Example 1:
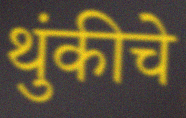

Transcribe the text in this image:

थुंकीचे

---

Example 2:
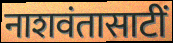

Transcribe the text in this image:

नाशवंतासाटीं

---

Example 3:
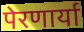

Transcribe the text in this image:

पेरणार्या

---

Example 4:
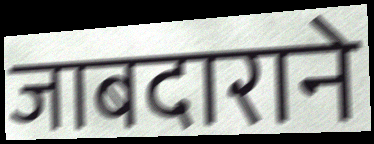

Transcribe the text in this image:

जाबदाराने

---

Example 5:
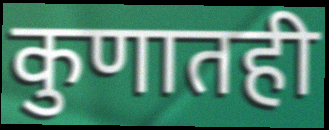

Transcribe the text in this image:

कुणातही